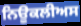
ਨਿਊਕਲੀਅਸ